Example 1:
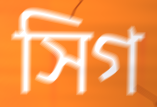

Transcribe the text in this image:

সিগ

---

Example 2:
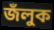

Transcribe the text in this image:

জঁলুক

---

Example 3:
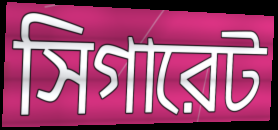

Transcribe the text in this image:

সিগারেট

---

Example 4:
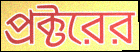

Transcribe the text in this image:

প্রক্টরের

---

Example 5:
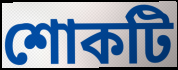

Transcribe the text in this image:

শোকটি